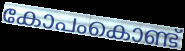
കോപംകൊണ്ട്